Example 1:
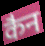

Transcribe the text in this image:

कैन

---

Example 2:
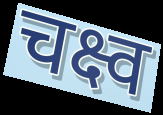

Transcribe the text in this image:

चक्ष्व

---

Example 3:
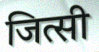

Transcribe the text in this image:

जित्सी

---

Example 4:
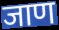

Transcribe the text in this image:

जाण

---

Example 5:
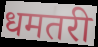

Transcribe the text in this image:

धमतरी